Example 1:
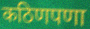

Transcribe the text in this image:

कठिणपणा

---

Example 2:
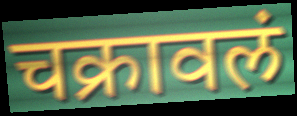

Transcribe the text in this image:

चक्रावलं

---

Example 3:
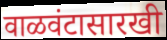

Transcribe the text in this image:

वाळवंटासारखी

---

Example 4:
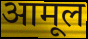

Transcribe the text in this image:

आमूल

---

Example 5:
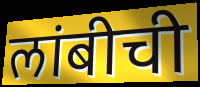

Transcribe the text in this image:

लांबीची